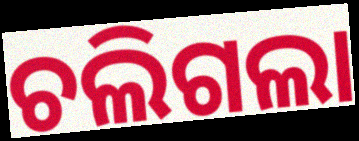
ଚଲିଗଲା